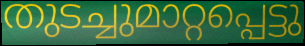
തുടച്ചുമാറ്റപ്പെട്ടു